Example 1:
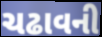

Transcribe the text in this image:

ચઢાવની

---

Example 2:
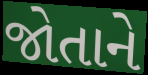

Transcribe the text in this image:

જોતાને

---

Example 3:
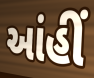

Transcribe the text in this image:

આંહીં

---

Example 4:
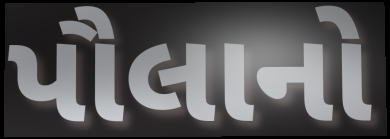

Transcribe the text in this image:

પૌલાનો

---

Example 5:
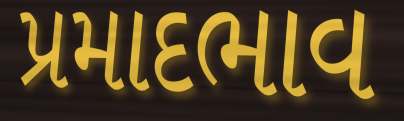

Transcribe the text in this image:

પ્રમાદભાવ